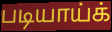
படியாய்க்